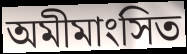
অমীমাংসিত